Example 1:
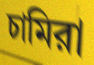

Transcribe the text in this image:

চামিরা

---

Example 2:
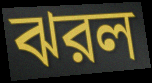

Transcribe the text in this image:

ঝরল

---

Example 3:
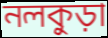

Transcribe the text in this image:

নলকুড়া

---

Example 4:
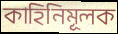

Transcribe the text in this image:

কাহিনিমূলক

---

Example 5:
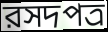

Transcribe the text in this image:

রসদপত্র